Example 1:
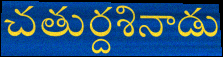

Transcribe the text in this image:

చతుర్దశినాడు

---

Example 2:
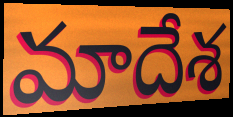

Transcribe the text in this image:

మాదేశ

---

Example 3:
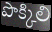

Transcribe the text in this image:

పొక్కిలి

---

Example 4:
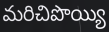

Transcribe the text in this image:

మరిచిపొయ్యి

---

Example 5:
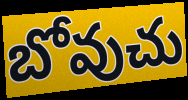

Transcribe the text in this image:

బోవుచు